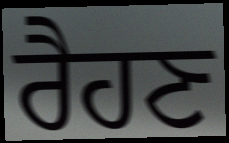
ਰੈਹਣ